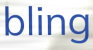
bling